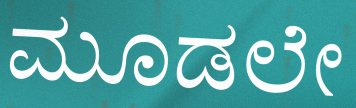
ಮೂಡಲೇ